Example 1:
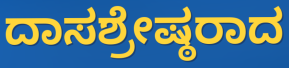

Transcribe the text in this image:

ದಾಸಶ್ರೇಷ್ಠರಾದ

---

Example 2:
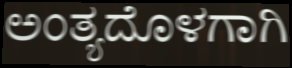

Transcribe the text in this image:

ಅಂತ್ಯದೊಳಗಾಗಿ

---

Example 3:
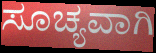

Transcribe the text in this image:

ಸೂಚ್ಯವಾಗಿ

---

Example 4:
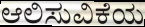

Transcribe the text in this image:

ಆಲಿಸುವಿಕೆಯ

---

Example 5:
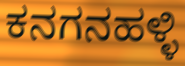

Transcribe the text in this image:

ಕನಗನಹಳ್ಳಿ